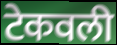
टेकवली